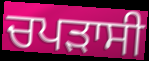
ਚਪੜਾਸੀ